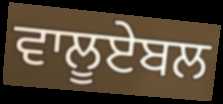
ਵਾਲੂਏਬਲ